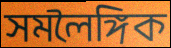
সমলৈঙ্গিক